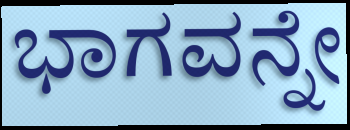
ಭಾಗವನ್ನೇ